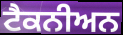
ਟੈਕਨੀਅਨ